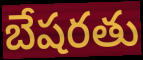
బేషరతు